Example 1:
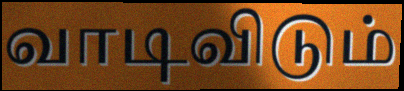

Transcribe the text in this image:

வாடிவிடும்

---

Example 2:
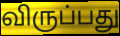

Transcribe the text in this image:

விருப்பது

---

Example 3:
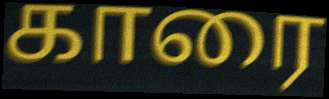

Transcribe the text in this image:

காரை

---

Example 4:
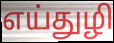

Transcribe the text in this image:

எய்துழி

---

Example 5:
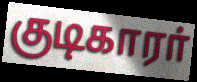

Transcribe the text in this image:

குடிகாரர்